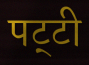
पट्‌टी